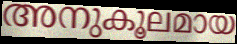
അനുകൂലമായ